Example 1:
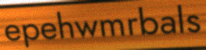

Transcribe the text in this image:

epehwmrbals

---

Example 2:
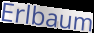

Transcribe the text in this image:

Erlbaum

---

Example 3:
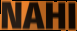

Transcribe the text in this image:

NAHI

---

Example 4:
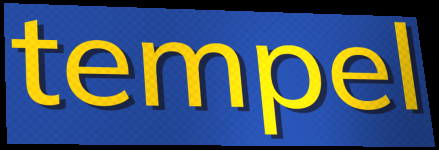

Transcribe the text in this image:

tempel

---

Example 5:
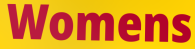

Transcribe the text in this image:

Womens